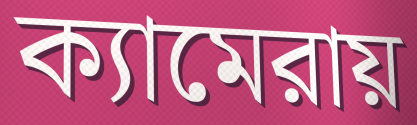
ক্যামেরায়